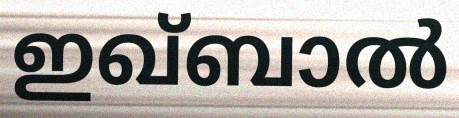
ഇഖ്ബാൽ